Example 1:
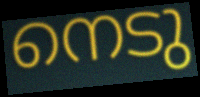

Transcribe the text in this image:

നെടു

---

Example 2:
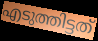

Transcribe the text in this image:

എടുത്തിട്ടത്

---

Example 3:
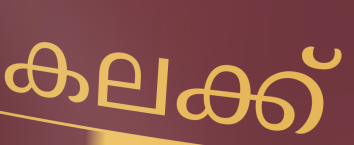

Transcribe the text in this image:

കലക്ക്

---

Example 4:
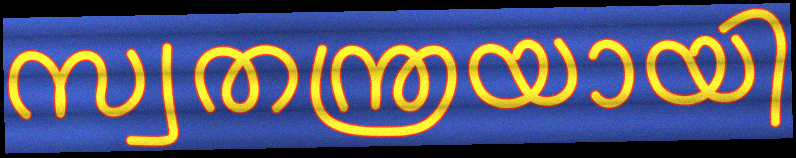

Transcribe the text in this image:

സ്വതന്ത്രയായി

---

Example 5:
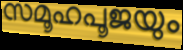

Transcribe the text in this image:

സമൂഹപൂജയും